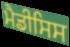
ਮੈਡੀਸਿਸ